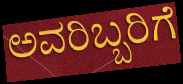
ಅವರಿಬ್ಬರಿಗೆ